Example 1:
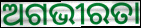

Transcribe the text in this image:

ଅଗଭୀରତା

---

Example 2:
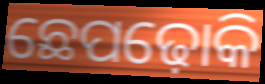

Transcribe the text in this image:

ଛେପଢ଼ୋକି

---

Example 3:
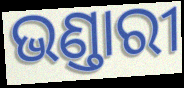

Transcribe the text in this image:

ଭଣ୍ଡାରୀ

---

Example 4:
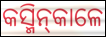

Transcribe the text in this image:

କସ୍ମିନ୍‍କାଳେ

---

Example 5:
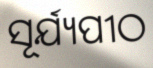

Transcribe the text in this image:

ସୂର୍ଯ୍ୟପୀଠ